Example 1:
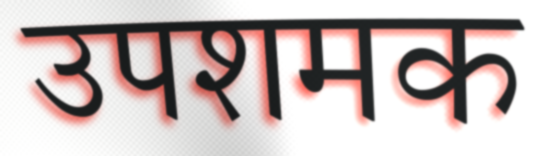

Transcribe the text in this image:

उपशमक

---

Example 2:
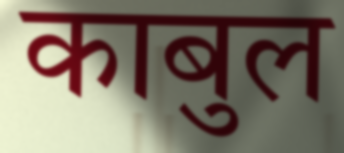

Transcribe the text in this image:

काबुल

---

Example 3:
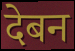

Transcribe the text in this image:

देबन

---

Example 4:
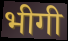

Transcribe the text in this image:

भीगी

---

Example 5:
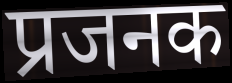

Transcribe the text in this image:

प्रजनक